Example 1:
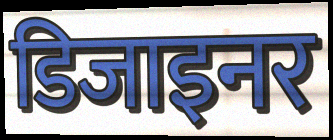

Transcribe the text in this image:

डिजाइनर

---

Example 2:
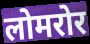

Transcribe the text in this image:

लोमरोर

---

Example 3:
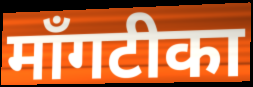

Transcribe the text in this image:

माँगटीका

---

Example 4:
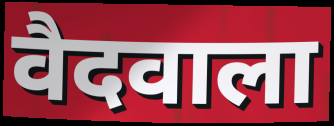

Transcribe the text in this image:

वैदवाला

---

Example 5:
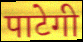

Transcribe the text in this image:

पाटेगी